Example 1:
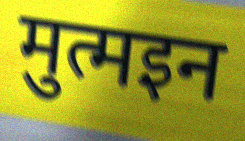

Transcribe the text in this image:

मुत्मइन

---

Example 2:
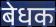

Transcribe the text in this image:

बेधक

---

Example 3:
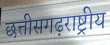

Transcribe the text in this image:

छत्तीसगढ़राष्ट्रीय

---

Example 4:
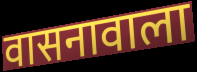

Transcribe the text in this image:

वासनावाला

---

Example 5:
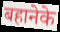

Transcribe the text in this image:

बहानेके